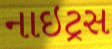
નાઇટ્રસ